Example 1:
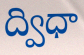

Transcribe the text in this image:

ద్విధా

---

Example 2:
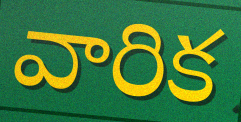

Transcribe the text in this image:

వారిక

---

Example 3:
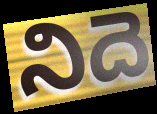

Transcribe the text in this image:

నిదె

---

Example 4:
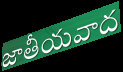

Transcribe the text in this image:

జాతీయవాద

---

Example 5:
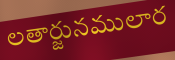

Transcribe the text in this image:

లతార్జునములార